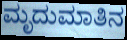
ಮೃದುಮಾತಿನ